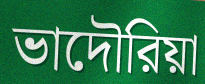
ভাদৌরিয়া